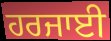
ਹਰਜਾਈ